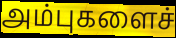
அம்புகளைச்